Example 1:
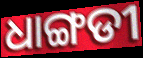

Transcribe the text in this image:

ଧାଙ୍ଗଡୀ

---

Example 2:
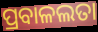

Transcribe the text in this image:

ପ୍ରବାଳଲତା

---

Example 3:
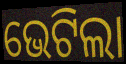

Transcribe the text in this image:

ଭେଟିଲା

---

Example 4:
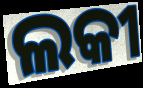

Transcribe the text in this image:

ଲକୀ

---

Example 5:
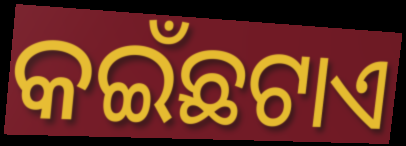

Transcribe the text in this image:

କଇଁଛଟାଏ